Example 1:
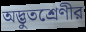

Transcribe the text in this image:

অদ্ভুতশ্রেণীর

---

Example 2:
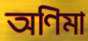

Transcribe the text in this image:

অণিমা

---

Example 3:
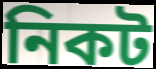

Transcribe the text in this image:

নিকট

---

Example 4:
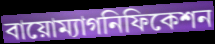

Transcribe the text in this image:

বায়োম্যাগনিফিকেশন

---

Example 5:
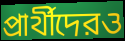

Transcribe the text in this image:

প্রার্থীদেরও